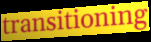
transitioning